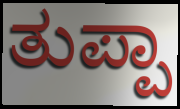
ತುಪ್ಪಾ